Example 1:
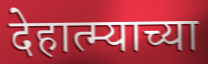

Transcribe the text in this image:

देहात्म्याच्या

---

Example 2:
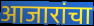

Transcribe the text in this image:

आजारांचा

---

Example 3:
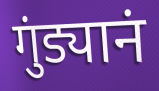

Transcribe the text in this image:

गुंड्यानं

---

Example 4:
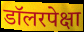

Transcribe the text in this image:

डॉलरपेक्षा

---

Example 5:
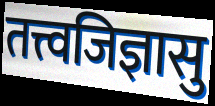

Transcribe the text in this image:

तत्त्वजिज्ञासु